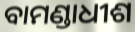
ବାମଣ୍ଡାଧୀଶ